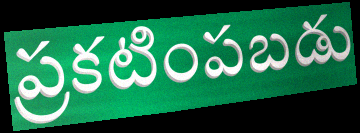
ప్రకటింపబడు